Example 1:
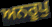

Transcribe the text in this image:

ਅਨਰੂਪੁ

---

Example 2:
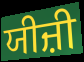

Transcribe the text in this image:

ਯੀਜ਼ੀ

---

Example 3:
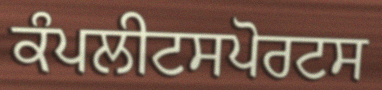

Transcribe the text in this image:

ਕੰਪਲੀਟਸਪੋਰਟਸ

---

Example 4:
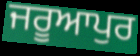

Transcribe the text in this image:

ਜਰੂਆਪੁਰ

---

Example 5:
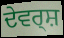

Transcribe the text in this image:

ਦੇਵਰ੍ਸ਼